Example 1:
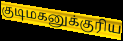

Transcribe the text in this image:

குடிமகனுக்குரிய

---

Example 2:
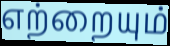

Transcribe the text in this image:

எற்றையும்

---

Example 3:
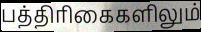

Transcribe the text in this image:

பத்திரிகைகளிலும்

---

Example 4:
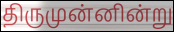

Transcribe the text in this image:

திருமுன்னின்று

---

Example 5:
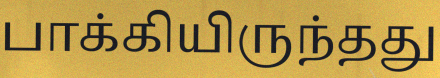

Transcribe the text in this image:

பாக்கியிருந்தது